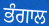
ਭੰਗਾਲ